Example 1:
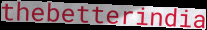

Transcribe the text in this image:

thebetterindia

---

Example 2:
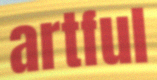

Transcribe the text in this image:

artful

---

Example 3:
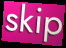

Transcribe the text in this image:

skip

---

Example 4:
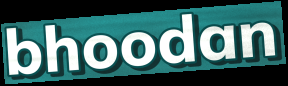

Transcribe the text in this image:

bhoodan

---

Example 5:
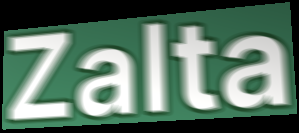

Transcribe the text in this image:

Zalta